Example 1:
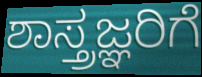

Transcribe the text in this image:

ಶಾಸ್ತ್ರಜ್ಞರಿಗೆ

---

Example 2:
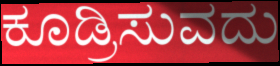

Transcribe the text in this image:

ಕೂಡ್ರಿಸುವದು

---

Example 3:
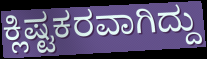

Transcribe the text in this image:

ಕ್ಲಿಷ್ಟಕರವಾಗಿದ್ದು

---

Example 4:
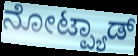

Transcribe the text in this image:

ನೋಟ್ಪ್ಯಾಡ್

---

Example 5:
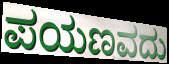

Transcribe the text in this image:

ಪಯಣವದು